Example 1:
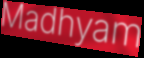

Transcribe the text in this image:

Madhyam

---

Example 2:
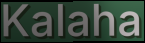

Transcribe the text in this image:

Kalaha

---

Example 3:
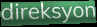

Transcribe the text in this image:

direksyon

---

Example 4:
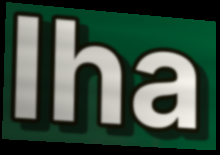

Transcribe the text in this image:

Iha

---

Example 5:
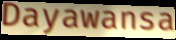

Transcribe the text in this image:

Dayawansa